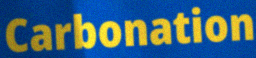
Carbonation